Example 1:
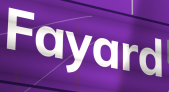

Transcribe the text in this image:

Fayard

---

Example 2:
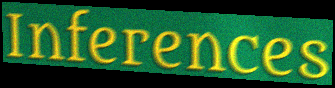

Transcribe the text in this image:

Inferences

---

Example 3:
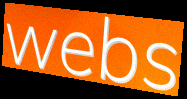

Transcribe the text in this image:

webs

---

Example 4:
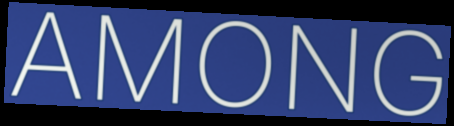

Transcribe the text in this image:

AMONG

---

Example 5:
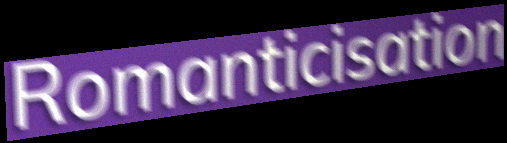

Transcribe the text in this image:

Romanticisation